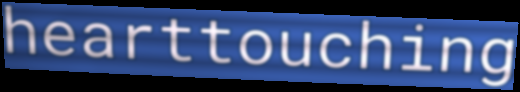
hearttouching